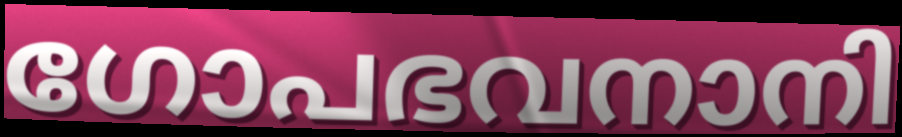
ഗോപഭവനാനി